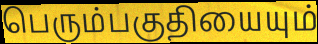
பெரும்பகுதியையும்